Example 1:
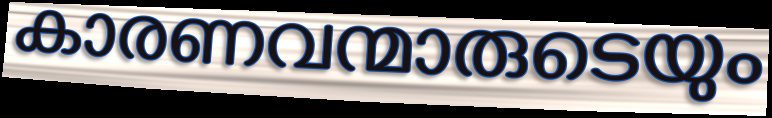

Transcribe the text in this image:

കാരണവന്മാരുടെയും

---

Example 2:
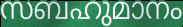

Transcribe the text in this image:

സബഹുമാനം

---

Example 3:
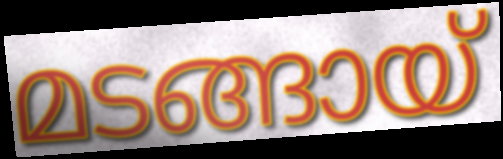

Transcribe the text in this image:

മടങ്ങായ്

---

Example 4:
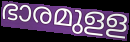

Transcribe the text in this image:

ഭാരമുളള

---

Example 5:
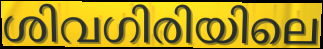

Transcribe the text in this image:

ശിവഗിരിയിലെ